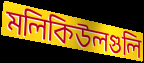
মলিকিউলগুলি